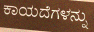
ಕಾಯದೆಗಳನ್ನು